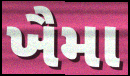
ખૈમા